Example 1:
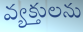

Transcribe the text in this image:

వ్యక్తులను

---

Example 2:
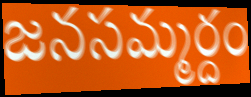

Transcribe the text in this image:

జనసమ్మర్దం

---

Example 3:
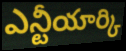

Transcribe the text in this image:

ఎన్టీయార్కి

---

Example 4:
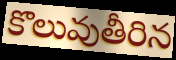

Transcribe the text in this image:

కొలువుతీరిన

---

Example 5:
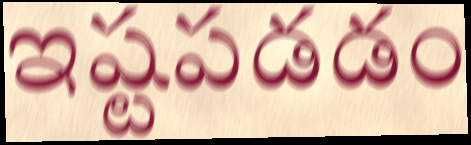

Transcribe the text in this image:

ఇష్టపడడం